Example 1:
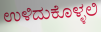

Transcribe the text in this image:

ಉಳಿದುಕೊಳ್ಳಲಿ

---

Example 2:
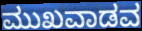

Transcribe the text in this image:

ಮುಖವಾಡವ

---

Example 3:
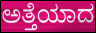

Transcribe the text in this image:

ಅತ್ತೆಯಾದ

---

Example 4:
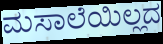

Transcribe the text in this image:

ಮಸಾಲೆಯಿಲ್ಲದ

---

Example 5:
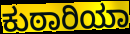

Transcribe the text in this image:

ಕುಠಾರಿಯಾ